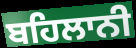
ਬਹਿਲਾਨੀ